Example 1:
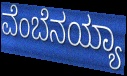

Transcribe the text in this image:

ವೆಂಬೆನಯ್ಯಾ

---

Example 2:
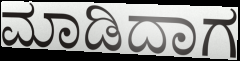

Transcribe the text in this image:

ಮಾಡಿದಾಗ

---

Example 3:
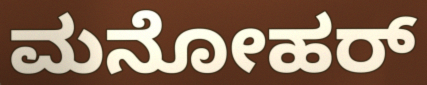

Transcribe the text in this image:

ಮನೋಹರ್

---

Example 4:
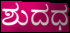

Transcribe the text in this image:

ಶುದಧ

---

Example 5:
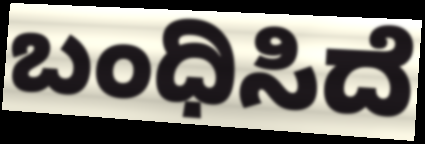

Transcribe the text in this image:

ಬಂಧಿಸಿದೆ